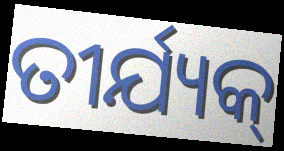
ତୀର୍ଯ୍ୟକ୍